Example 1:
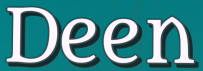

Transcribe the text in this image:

Deen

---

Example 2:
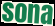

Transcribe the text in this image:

sona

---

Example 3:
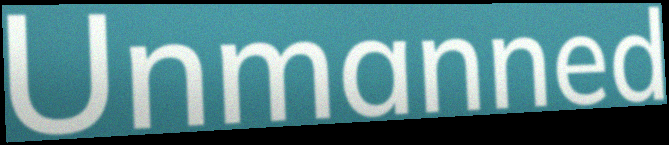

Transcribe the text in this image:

Unmanned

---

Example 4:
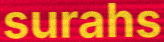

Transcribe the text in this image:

surahs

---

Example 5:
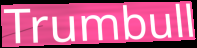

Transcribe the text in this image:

Trumbull